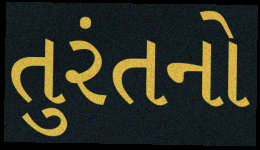
તુરંતનો